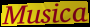
Musica